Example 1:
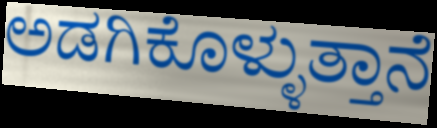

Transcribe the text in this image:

ಅಡಗಿಕೊಳ್ಳುತ್ತಾನೆ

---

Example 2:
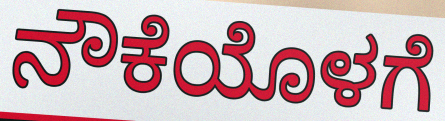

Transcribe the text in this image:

ನೌಕೆಯೊಳಗೆ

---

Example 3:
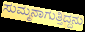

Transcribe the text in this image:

ಸುಮ್ಮನಾಗುತ್ತಿದ್ದನು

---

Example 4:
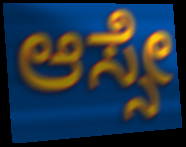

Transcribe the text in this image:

ಆಸ್ಸೇ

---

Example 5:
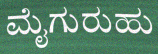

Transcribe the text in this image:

ಮೈಗುರುಹು